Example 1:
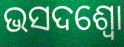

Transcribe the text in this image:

ଭସଦଶ୍ଵୋ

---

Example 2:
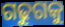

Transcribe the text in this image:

ଗଢୁଗକୁ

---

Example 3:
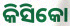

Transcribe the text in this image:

କିସିକୋ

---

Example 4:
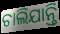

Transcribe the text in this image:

ଚାଲିଯାନ୍ତି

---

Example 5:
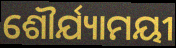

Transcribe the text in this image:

ଶୌର୍ଯ୍ୟାମୟୀ